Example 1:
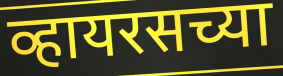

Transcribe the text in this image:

व्हायरसच्या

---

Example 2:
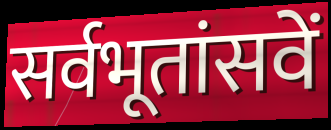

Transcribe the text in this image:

सर्वभूतांसवें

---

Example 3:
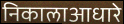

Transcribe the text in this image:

निकालाआधारे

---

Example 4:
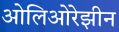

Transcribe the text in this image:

ओलिओरेझीन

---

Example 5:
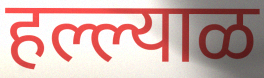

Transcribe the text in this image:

हल्ल्याळ